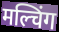
मल्चिंग